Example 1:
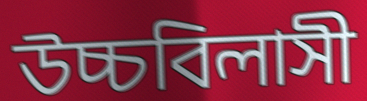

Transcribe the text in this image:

উচ্চবিলাসী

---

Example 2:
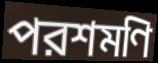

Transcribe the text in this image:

পরশমণি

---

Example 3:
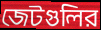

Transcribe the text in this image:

জেটগুলির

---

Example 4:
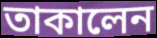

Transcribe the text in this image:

তাকালেন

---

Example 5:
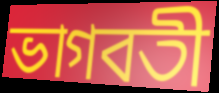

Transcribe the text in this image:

ভাগবতী